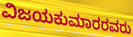
ವಿಜಯಕುಮಾರರವರು